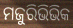
ମଜୁରିଭିଭିକ